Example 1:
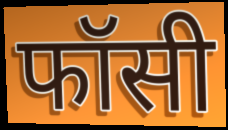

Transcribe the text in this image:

फॉसी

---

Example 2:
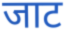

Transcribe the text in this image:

जाट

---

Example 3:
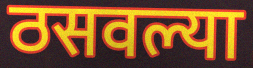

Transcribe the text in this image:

ठसवल्या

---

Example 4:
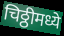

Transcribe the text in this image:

चिठ्ठीमध्ये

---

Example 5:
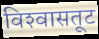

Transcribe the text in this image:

विश्वासतूट